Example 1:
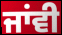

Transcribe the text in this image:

ਜਾਂਵੀ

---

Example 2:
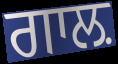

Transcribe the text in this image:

ਗਾਲ਼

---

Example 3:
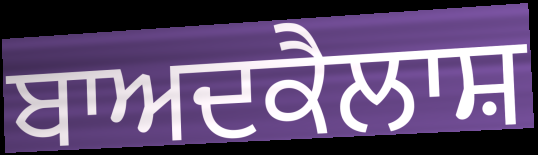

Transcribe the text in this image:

ਬਾਅਦਕੈਲਾਸ਼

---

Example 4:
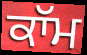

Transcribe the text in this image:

ਕਾੱਮ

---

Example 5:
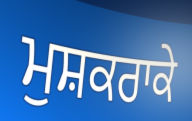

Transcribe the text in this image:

ਮੁਸ਼ਕਰਾਕੇ